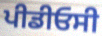
ਪੀਡੀਓਸੀ